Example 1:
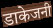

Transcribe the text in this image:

डाकेजनी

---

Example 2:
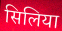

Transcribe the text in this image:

सिलिया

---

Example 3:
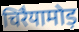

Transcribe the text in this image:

चिरैयामोड़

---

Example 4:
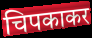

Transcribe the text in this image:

चिपकाकर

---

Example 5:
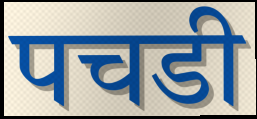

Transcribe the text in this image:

पचडी